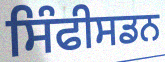
ਸਿੰਫੀਸਡਨ